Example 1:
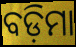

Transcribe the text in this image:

ବଡ଼ିମା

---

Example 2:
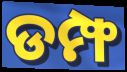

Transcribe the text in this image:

ଡମ୍ଫ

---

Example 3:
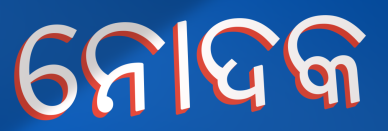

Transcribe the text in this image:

ନୋଦକ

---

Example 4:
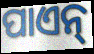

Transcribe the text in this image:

ପାଏନ୍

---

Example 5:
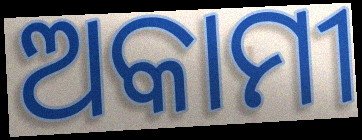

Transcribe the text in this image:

ଅକାମୀ